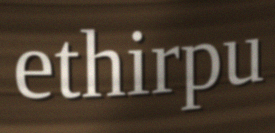
ethirpu